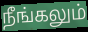
நீங்கலும்